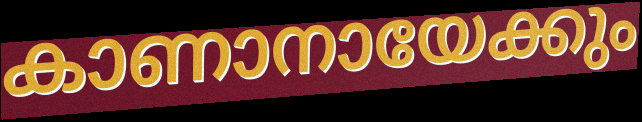
കാണാനായേക്കും